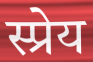
स्प्रेय